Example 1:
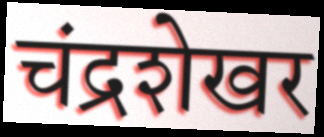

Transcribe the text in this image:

चंद्रशेखर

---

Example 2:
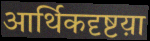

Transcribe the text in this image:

आर्थिकदृष्टय़ा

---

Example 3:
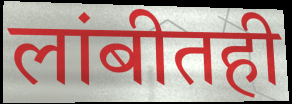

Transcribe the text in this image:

लांबीतही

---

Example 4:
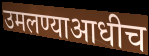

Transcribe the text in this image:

उमलण्याआधीच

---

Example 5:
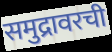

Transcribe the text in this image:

समुद्रावरची